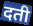
दती